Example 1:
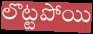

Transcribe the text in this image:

లొట్టపోయి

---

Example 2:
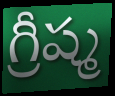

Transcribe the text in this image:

గ్రీష్మ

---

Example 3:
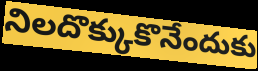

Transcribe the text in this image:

నిలదొక్కుకొనేందుకు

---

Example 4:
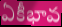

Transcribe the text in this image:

ఏకీభావ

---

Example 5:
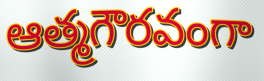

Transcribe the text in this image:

ఆత్మగౌరవంగా